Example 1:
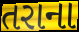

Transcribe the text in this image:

તરાના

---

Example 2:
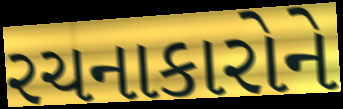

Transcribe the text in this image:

રચનાકારોને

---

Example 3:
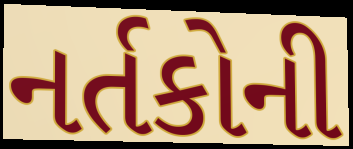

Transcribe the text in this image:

નર્તકોની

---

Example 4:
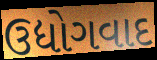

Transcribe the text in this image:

ઉદ્યોગવાદ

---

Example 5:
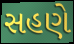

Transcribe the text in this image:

સહણે